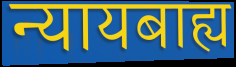
न्यायबाह्य